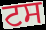
ਟਸ